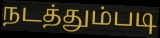
நடத்தும்படி